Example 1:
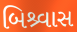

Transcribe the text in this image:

બિશ્ર્વાસ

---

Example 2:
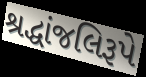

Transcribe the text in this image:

શ્રદ્ધાંજલિરૂપે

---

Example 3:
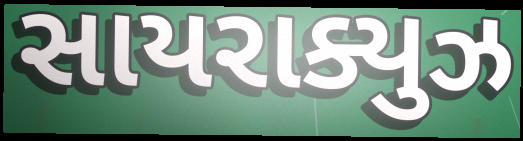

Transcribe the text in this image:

સાયરાક્યુઝ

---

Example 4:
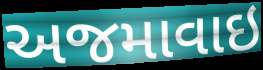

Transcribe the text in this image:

અજમાવાઇ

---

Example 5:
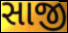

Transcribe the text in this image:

સાજી